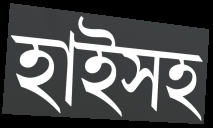
হাইসহ